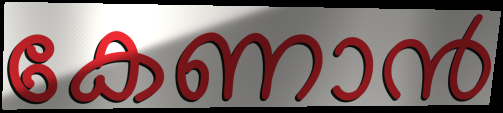
കേണാൻ